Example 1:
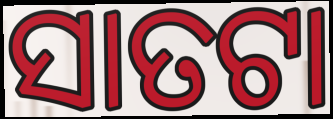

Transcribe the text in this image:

ସାତଟା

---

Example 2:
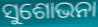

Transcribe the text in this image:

ସୁଶୋଭନା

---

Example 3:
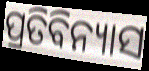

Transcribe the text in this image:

ପ୍ରତିବିନ୍ୟାସ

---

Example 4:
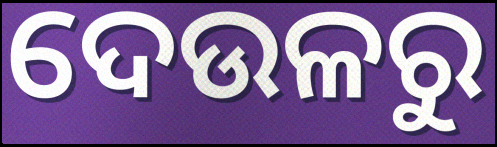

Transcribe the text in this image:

ଦେଉଳରୁ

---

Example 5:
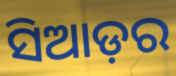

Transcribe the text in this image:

ସିଆଡ଼ର